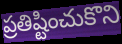
ప్రతిష్టించుకొని